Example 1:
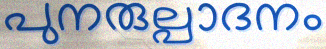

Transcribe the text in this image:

പുനരുല്പാദനം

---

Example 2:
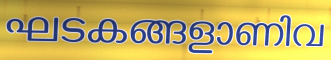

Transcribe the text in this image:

ഘടകങ്ങളാണിവ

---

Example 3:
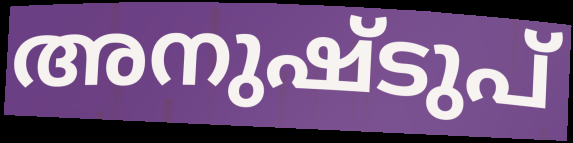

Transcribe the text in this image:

അനുഷ്ടുപ്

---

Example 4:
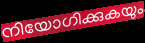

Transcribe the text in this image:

നിയോഗിക്കുകയും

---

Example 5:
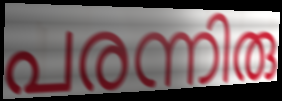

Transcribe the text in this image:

പരന്നിരു